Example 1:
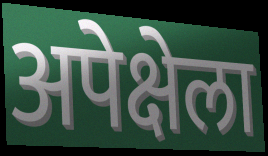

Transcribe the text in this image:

अपेक्षेला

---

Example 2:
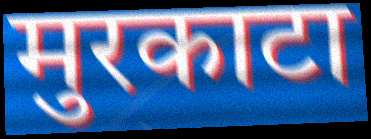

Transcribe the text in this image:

मुरकाटा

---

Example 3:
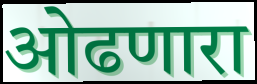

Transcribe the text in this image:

ओढणारा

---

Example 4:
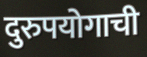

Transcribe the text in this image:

दुरुपयोगाची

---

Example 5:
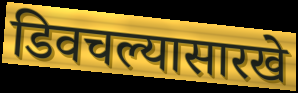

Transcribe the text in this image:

डिवचल्यासारखे